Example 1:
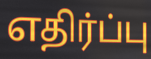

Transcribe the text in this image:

எதிர்ப்பு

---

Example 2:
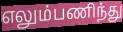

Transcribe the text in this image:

எலும்பணிந்து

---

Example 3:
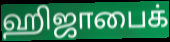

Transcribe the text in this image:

ஹிஜாபைக்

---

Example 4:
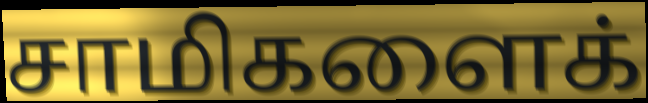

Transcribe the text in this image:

சாமிகளைக்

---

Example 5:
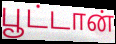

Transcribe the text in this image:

பூட்டான்